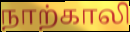
நாற்காலி